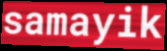
samayik